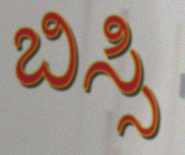
ಬಿಸ್ಸಿ